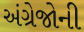
અંગ્રેજોની